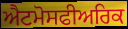
ਐਟਮੋਸਫੀਅਰਿਕ